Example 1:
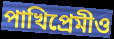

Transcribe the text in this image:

পাখিপ্রেমীও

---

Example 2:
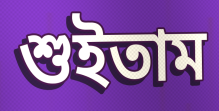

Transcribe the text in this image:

শুইতাম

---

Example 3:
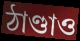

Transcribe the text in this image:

ঠাণ্ডাও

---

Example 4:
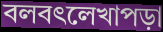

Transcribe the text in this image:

বলবৎলেখাপড়া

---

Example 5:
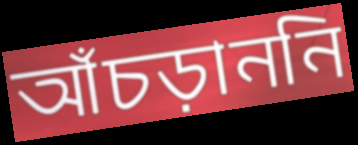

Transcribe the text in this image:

আঁচড়াননি